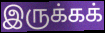
இருக்கக்